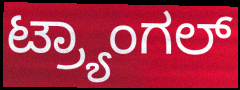
ಟ್ರ್ಯಾಂಗಲ್